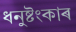
ধনুষ্টংকাৰ